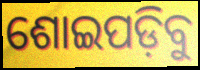
ଶୋଇପଡ଼ିବୁ